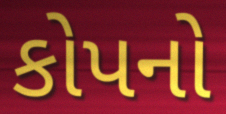
કોપનો